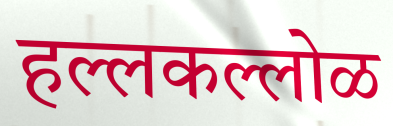
हल्लकल्लोळ